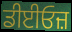
ਡੀਈਓਜ਼